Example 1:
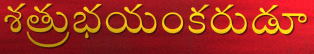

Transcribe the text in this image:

శత్రుభయంకరుడూ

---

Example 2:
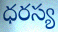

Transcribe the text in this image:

ధరస్య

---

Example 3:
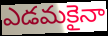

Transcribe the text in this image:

ఎడమకైనా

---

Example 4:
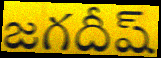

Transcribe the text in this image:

జగదీష్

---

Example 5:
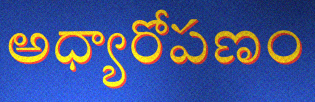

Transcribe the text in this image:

అధ్యారోపణం